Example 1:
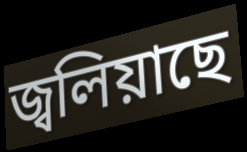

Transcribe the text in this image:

জ্বলিয়াছে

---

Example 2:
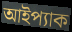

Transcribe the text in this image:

আইপ্যাক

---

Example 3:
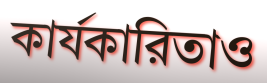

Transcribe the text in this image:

কার্যকারিতাও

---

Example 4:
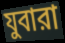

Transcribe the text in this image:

যুবারা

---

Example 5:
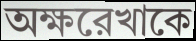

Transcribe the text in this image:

অক্ষরেখাকে